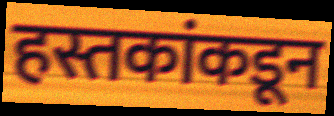
हस्तकांकडून